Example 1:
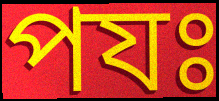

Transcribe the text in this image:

পযঃ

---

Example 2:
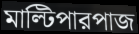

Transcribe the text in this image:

মাল্টিপারপাজ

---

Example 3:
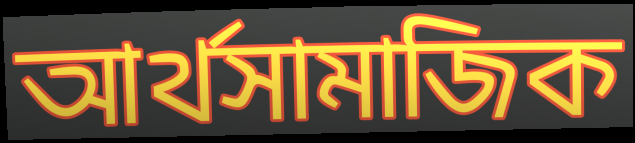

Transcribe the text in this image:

আর্থসামাজিক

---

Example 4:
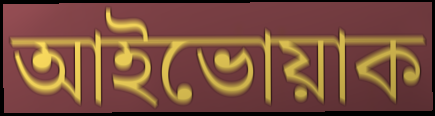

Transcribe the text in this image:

আইভোয়াক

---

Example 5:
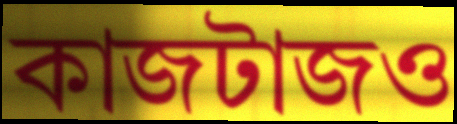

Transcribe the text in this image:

কাজটাজও